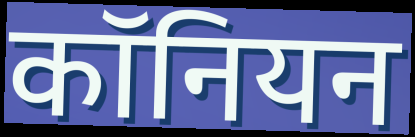
कॉनियन